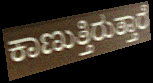
ಕಾಣುತ್ತಿರುತ್ತಾರೆ